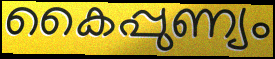
കൈപ്പുണ്യം